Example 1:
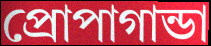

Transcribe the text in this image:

প্রোপাগান্ডা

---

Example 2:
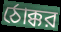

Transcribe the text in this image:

ঠোক্কর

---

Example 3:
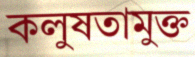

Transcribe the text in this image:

কলুষতামুক্ত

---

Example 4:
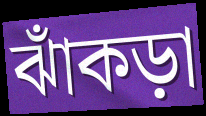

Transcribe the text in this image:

ঝাঁকড়া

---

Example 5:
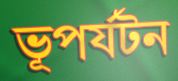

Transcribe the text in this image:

ভূপর্যটন